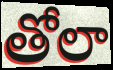
తోలా